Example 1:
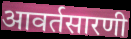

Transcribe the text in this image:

आवर्तसारणी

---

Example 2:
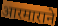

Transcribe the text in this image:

आरमाराने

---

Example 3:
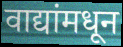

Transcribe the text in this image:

वाद्यांमधून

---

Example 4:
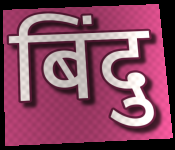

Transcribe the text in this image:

बिंदु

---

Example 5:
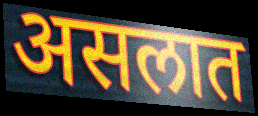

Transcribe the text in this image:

असलात